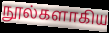
நூல்களாகிய